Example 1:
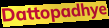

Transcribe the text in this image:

Dattopadhye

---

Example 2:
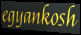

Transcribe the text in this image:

egyankosh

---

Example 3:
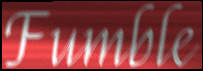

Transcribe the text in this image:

Fumble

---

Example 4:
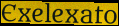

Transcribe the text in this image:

Exelexato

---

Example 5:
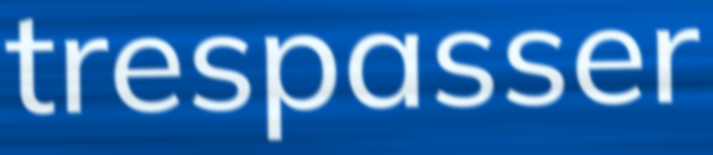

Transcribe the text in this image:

trespasser